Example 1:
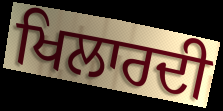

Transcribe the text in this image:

ਖਿਲਾਰਦੀ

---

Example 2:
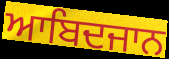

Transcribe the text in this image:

ਆਬਿਦਜਾਨ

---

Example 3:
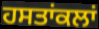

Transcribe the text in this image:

ਹਸਤਾਂਕਲਾਂ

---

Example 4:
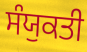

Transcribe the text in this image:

ਸੰਯੁਕਤੀ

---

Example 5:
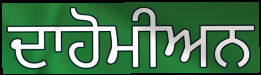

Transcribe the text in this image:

ਦਾਹੋਮੀਅਨ